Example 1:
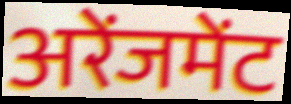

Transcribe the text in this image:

अरेंजमेंट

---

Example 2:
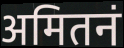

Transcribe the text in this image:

अमितनं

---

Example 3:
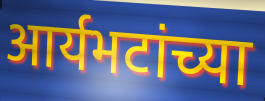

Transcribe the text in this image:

आर्यभटांच्या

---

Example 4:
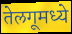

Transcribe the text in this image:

तेलगूमध्ये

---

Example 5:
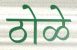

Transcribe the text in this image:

ठोळे